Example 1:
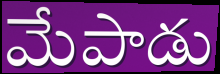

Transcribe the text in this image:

మేపాడు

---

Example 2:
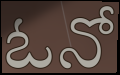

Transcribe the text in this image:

ఓనో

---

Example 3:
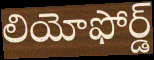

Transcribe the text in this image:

లియోఫోర్డ్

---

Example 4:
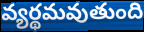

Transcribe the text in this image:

వ్యర్థమవుతుంది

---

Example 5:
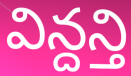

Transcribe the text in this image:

విన్దన్తి